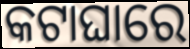
କଟାଘାରେ